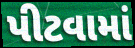
પીટવામાં